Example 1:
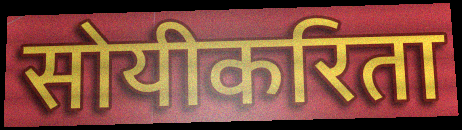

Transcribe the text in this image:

सोयीकरिता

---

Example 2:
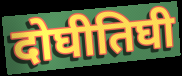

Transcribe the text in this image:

दोघीतिघी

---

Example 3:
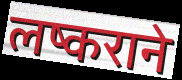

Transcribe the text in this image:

लष्कराने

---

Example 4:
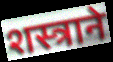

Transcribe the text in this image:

शस्त्राने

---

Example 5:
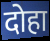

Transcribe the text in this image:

दोहा